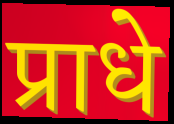
प्राधे